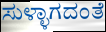
ಸುಳ್ಳಾಗದಂತೆ